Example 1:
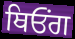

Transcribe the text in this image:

ਥਿਓਂਗ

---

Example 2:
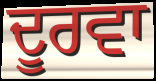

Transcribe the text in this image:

ਦੂਰਵਾ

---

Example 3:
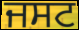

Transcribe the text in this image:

ਜਸਟ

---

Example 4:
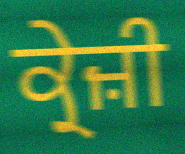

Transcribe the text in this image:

ਕ੍ਰੇਜ਼ੀ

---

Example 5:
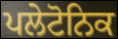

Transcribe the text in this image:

ਪਲੇਟੋਨਿਕ